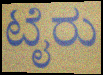
ಟೈರು